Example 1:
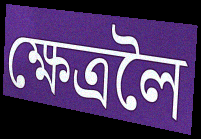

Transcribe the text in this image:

ক্ষেত্ৰলৈ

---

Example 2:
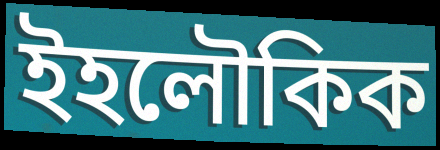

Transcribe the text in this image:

ইহলৌকিক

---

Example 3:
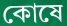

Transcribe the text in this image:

কোষে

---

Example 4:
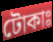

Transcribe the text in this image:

টোকাঃ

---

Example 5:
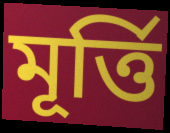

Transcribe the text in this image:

মূৰ্ত্তি